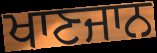
ਖਾਣਜਾਨ